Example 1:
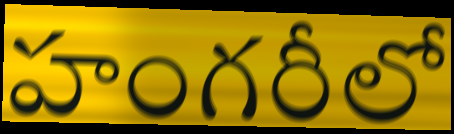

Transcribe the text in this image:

హంగరీలో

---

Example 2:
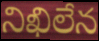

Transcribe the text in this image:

నిఖిలేన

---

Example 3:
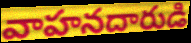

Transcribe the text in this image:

వాహనదారుడి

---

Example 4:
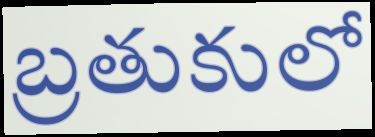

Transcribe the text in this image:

బ్రతుకులో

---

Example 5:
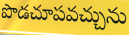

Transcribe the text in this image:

పొడచూపవచ్చును